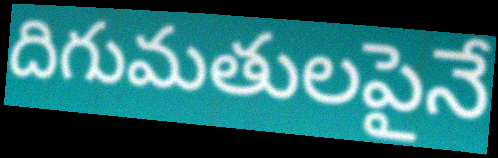
దిగుమతులపైనే